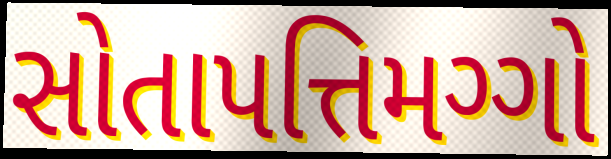
સોતાપત્તિમગ્ગો